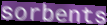
sorbents